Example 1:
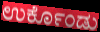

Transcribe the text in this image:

ಉರ್ಕೊಂಡು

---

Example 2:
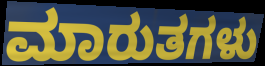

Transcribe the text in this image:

ಮಾರುತಗಳು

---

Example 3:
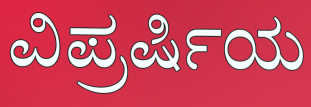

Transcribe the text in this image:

ವಿಪ್ರರ್ಷಿಯ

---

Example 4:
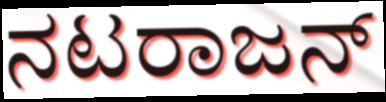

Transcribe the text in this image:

ನಟರಾಜನ್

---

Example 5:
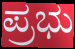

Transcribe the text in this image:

ಪ್ರಭು